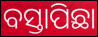
ବସ୍ତାପିଛା